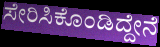
ಸೇರಿಸಿಕೊಂಡಿದ್ದೇನೆ